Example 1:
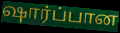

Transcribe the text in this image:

ஷார்ப்பான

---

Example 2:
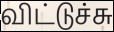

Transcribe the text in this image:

விட்டுச்சு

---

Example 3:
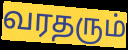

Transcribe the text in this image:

வரதரும்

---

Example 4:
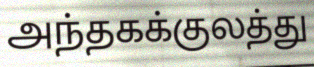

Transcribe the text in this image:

அந்தகக்குலத்து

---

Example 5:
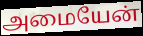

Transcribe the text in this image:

அமையேன்